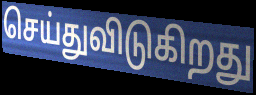
செய்துவிடுகிறது